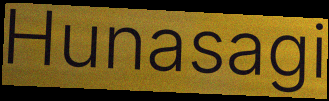
Hunasagi